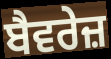
ਬੈਵਰੇਜ਼